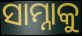
ସାମ୍ନାକୁ